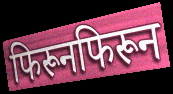
फिरूनफिरून